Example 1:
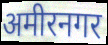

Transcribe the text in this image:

अमीरनगर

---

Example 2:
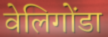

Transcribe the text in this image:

वेलिगोंडा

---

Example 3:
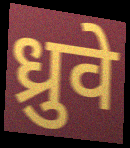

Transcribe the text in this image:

ध्रुवे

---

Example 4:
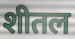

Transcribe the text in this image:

शीतल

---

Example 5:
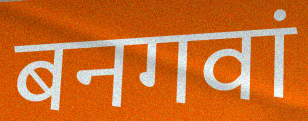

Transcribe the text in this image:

बनगवां